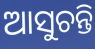
ଆସୁଚନ୍ତି